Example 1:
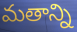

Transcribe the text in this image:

మతాన్ని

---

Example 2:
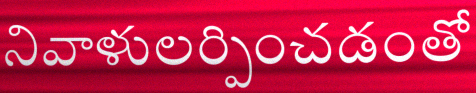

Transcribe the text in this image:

నివాళులర్పించడంతో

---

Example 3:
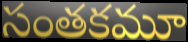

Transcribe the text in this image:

సంతకమూ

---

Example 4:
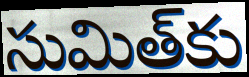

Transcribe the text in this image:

సుమిత్‌కు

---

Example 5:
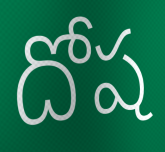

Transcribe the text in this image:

దోష